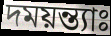
দময়ন্ত্যাঃ